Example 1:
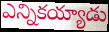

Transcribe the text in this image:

ఎన్నికయ్యాడు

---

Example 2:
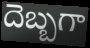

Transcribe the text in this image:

దెబ్బగా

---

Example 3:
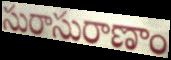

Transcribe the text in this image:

సురాసురాణాం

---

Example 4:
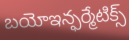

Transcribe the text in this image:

బయోఇన్ఫర్మేటిక్స్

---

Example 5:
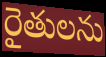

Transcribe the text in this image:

రైతులను